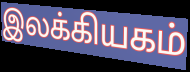
இலக்கியகம்